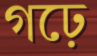
গঢ়ে